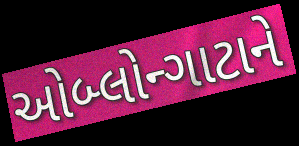
ઓબ્લોન્ગાટાને